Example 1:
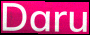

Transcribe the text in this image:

Daru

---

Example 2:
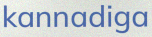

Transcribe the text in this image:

kannadiga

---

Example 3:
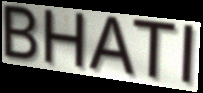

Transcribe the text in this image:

BHATI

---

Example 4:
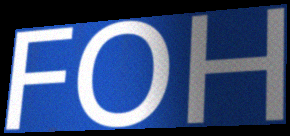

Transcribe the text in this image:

FOH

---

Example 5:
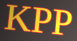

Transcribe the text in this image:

KPP